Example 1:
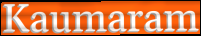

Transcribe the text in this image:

Kaumaram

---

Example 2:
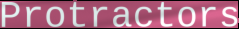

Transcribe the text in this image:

Protractors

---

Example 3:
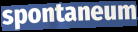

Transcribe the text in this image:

spontaneum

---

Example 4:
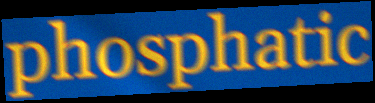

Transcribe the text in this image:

phosphatic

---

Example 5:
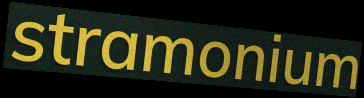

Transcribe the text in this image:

stramonium